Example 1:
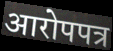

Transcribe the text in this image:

आरोपपत्र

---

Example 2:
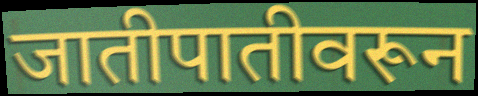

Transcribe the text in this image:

जातीपातीवरून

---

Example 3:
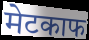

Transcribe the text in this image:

मेटकाफ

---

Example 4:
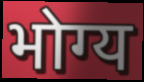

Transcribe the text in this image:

भोग्य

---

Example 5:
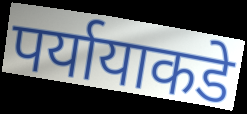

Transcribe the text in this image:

पर्यायाकडे